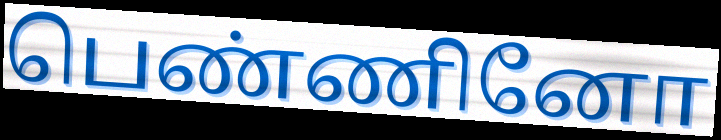
பெண்ணினோ